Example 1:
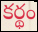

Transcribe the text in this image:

కర్థం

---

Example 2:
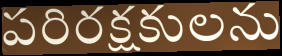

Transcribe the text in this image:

పరిరక్షకులను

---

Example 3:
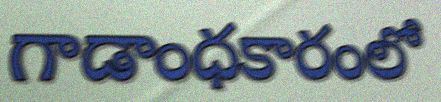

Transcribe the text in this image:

గాడాంధకారంలో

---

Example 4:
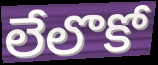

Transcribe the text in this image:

లేలొకో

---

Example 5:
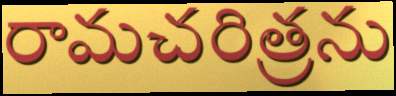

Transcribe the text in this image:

రామచరిత్రను